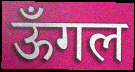
ऊँगल